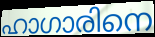
ഹാഗാരിനെ